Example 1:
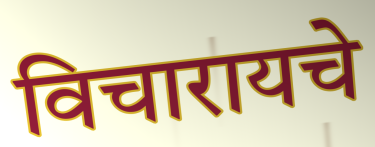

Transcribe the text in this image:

विचारायचे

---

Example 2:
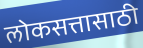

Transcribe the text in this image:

लोकसत्तासाठी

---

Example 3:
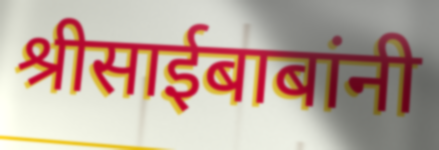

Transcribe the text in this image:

श्रीसाईबाबांनी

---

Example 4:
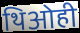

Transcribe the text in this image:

थिओही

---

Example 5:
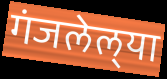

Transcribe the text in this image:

गंजलेल्या